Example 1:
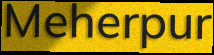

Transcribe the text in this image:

Meherpur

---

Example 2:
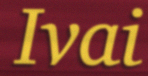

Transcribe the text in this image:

Ivai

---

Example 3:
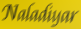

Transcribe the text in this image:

Naladiyar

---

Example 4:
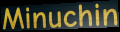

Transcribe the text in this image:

Minuchin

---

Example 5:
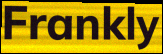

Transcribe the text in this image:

Frankly